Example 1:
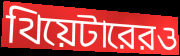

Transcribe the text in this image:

থিয়েটারেরও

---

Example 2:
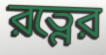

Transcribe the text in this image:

রত্নের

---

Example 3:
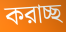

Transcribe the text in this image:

করাচ্ছ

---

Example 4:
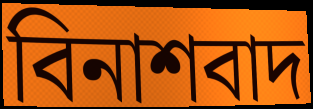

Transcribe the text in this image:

বিনাশবাদ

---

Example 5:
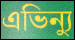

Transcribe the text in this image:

এভিন্যু